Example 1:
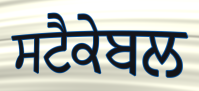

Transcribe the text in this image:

ਸਟੈਕੇਬਲ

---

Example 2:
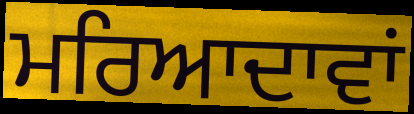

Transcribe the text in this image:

ਮਰਿਆਦਾਵਾਂ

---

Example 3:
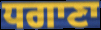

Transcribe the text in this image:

ਧਗਾਣਾ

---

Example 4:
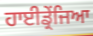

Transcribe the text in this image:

ਹਾਈਡ੍ਰੇਂਜਿਆ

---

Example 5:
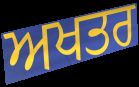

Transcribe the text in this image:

ਅਖਤਰ